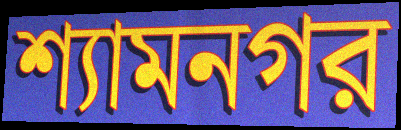
শ্যামনগর